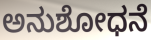
ಅನುಶೋಧನೆ